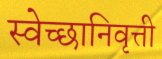
स्वेच्छानिवृत्ती